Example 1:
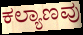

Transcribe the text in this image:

ಕಲ್ಯಾಣವು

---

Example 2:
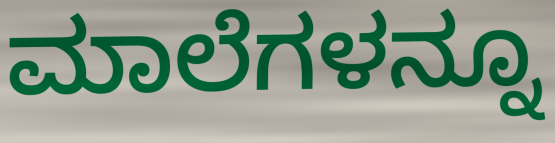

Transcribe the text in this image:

ಮಾಲೆಗಳನ್ನೂ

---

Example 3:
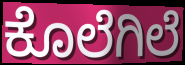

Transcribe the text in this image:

ಕೊಲೆಗಿಲೆ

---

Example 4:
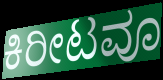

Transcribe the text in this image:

ಕಿರೀಟವೂ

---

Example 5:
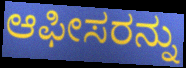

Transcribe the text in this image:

ಆಫೀಸರನ್ನು